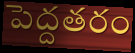
పెద్దతరం